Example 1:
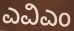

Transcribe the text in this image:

ಎವಿಎಂ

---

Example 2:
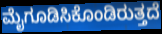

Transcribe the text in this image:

ಮೈಗೂಡಿಸಿಕೊಂಡಿರುತ್ತದೆ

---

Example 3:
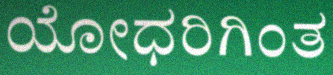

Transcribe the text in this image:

ಯೋಧರಿಗಿಂತ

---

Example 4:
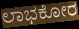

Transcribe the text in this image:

ಲಾಭಕೋರ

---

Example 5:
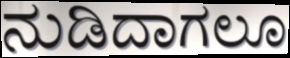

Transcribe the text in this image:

ನುಡಿದಾಗಲೂ